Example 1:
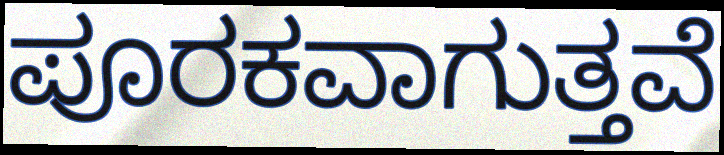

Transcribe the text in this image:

ಪೂರಕವಾಗುತ್ತವೆ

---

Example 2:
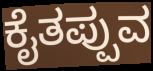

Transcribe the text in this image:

ಕೈತಪ್ಪುವ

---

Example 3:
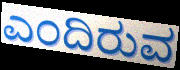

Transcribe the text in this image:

ಎಂದಿರುವ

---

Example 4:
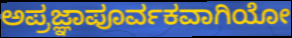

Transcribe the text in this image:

ಅಪ್ರಜ್ಞಾಪೂರ್ವಕವಾಗಿಯೋ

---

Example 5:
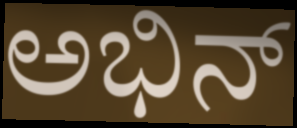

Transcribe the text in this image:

ಅಭಿನ್